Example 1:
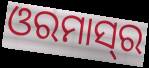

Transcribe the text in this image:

ଓରମାସ୍‌ର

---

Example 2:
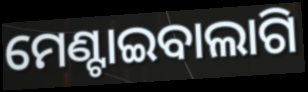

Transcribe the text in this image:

ମେଣ୍ଟାଇବାଲାଗି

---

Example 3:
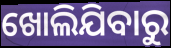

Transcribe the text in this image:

ଖୋଲିଯିବାରୁ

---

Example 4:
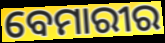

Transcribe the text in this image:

ବେମାରୀର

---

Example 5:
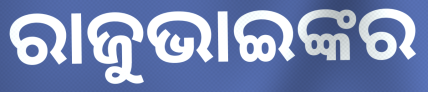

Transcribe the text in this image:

ରାଜୁଭାଇଙ୍କର